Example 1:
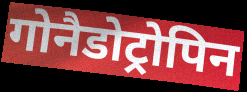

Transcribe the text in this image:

गोनैडोट्रोपिन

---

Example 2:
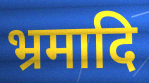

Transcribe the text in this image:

भ्रमादि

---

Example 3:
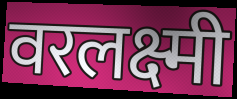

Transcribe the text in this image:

वरलक्ष्‍मी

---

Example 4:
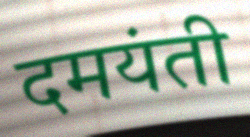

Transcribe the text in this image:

दमयंती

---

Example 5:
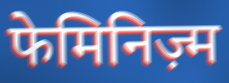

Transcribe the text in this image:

फेमिनिज़्म